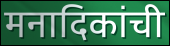
मनादिकांची